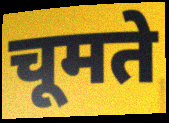
चूमते